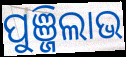
ପୁଞ୍ଜିଲାଭ